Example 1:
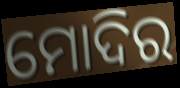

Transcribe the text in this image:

ମୋଦିର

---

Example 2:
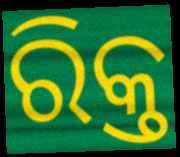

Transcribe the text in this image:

ରିକ୍ତ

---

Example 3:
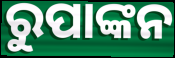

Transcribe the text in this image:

ରୁପାଙ୍କନ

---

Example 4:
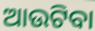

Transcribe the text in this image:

ଆଉଟିବା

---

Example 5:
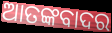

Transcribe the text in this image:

ଆତଙ୍କବାଦର